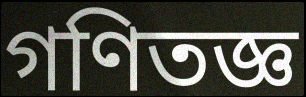
গণিতজ্ঞ